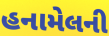
હનામેલની